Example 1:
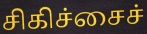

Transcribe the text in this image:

சிகிச்சைச்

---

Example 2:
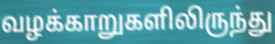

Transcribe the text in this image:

வழக்காறுகளிலிருந்து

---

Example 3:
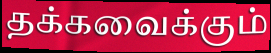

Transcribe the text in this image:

தக்கவைக்கும்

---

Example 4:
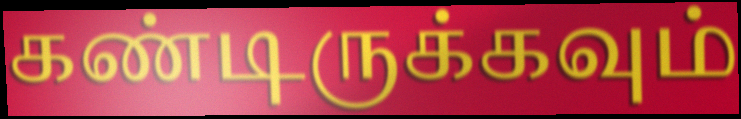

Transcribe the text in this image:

கண்டிருக்கவும்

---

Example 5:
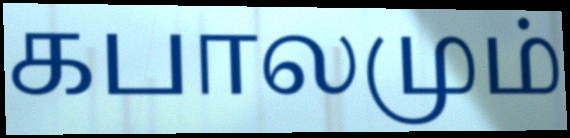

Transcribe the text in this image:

கபாலமும்